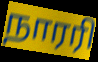
நாரரி